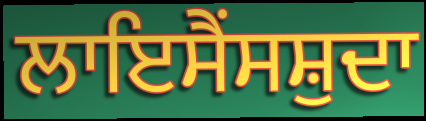
ਲਾਇਸੈਂਸਸ਼ੁਦਾ